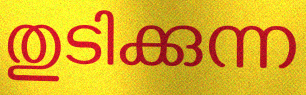
തുടിക്കുന്ന